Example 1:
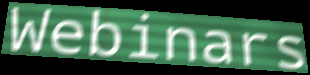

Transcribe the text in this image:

Webinars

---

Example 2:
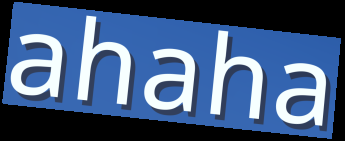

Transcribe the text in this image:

ahaha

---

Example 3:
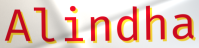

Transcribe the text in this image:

Alindha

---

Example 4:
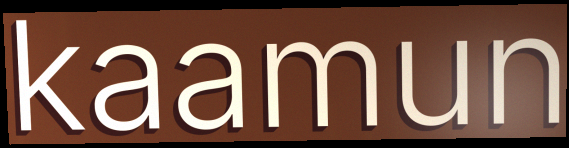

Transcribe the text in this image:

kaamun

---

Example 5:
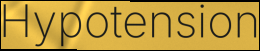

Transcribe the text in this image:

Hypotension